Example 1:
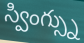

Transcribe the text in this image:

స్వింగ్స్ను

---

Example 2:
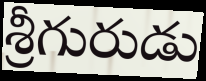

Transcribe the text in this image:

శ్రీగురుడు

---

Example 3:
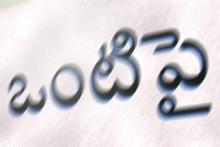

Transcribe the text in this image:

ఒంటిపై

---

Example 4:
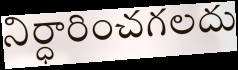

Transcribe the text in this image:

నిర్ధారించగలదు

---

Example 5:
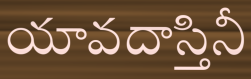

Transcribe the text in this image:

యావదాస్తినీ